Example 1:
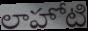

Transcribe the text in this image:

లాహోటి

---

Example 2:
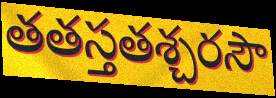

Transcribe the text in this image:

తతస్తతశ్చరసౌ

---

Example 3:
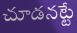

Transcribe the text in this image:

చూడనట్టే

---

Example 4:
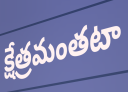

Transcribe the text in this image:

క్షేత్రమంతటా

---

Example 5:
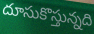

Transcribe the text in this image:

దూసుకొస్తున్నది